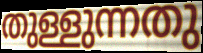
തുള്ളുന്നതു